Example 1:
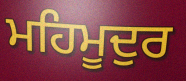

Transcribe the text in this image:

ਮਹਿਮੂਦੁਰ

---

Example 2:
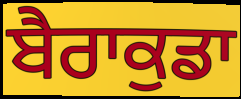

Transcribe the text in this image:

ਬੈਰਾਕੁਡਾ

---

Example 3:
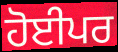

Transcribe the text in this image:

ਹੋਈਪਰ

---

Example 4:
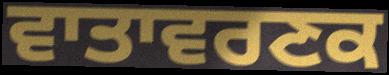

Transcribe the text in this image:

ਵਾਤਾਵਰਣਕ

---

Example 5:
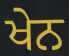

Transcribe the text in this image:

ਖੇਨ